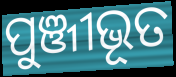
ପୁଞ୍ଜୀଭୂତ